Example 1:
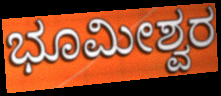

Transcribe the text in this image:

ಭೂಮೀಶ್ವರ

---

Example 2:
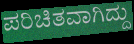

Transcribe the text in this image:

ಪರಿಚಿತವಾಗಿದ್ದು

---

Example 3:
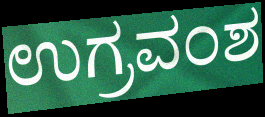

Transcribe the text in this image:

ಉಗ್ರವಂಶ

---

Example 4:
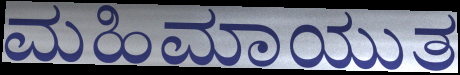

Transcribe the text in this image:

ಮಹಿಮಾಯುತ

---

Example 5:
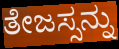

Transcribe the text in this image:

ತೇಜಸ್ಸನ್ನು